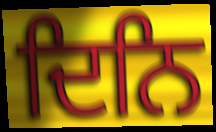
ਦਿਨਿ